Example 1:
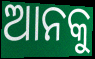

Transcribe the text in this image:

ଆନକୁ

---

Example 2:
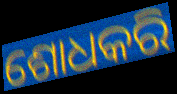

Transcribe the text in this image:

ଶୋଧକରି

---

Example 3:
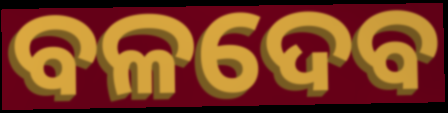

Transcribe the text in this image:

ବଳଦେବ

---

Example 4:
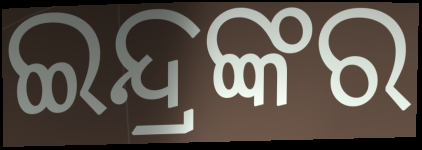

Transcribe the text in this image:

ଇନ୍ଦ୍ରଙ୍କର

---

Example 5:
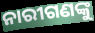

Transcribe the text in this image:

ନାରୀଗଣଙ୍କୁ